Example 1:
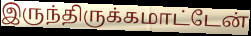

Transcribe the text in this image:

இருந்திருக்கமாட்டேன்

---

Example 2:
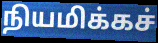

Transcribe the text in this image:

நியமிக்கச்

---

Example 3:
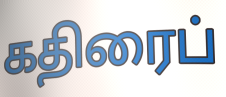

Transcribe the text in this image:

கதிரைப்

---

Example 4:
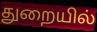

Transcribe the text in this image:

துறையில்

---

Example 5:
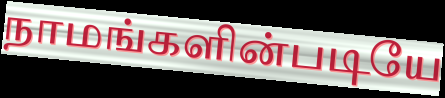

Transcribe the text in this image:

நாமங்களின்படியே